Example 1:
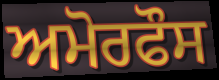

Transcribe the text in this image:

ਅਮੋਰਫੌਸ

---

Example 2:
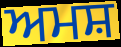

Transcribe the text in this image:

ਅਮਸ਼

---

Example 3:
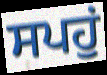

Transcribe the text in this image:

ਸਪਹੁਂ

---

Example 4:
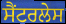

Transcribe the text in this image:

ਸੈਂਟਰਲੇਸ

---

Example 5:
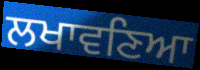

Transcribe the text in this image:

ਲਖਾਵਣਿਆ